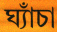
ঘ্যাঁচা